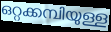
ഒറ്റക്കമ്പിയുള്ള